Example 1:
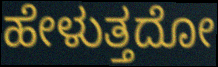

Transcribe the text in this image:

ಹೇಳುತ್ತದೋ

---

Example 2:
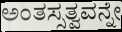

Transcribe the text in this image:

ಅಂತಸ್ಸತ್ವವನ್ನೇ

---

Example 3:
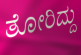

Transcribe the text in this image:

ತೋರಿದ್ದು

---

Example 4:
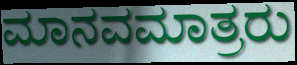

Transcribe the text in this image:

ಮಾನವಮಾತ್ರರು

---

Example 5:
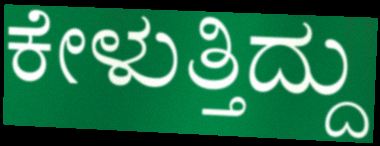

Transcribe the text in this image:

ಕೇಳುತ್ತಿದ್ದು